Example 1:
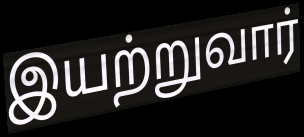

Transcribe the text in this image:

இயற்றுவார்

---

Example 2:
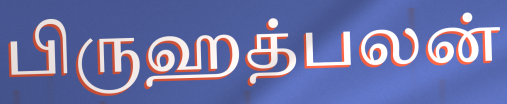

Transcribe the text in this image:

பிருஹத்பலன்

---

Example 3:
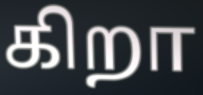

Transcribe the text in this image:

கிறா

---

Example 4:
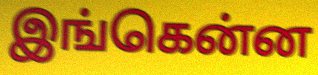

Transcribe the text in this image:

இங்கென்ன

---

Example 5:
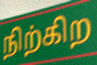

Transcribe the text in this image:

நிற்கிற